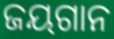
ଜୟଗାନ